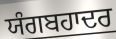
ਯੰਗਬਹਾਦਰ